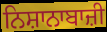
ਨਿਸ਼ਾਨਾਬਾਜ਼ੀ